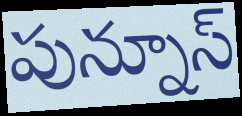
పున్నూస్